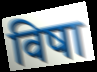
विषा